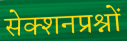
सेक्शनप्रश्नों